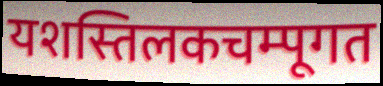
यशस्तिलकचम्पूगत